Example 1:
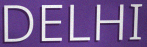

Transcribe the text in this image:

DELHI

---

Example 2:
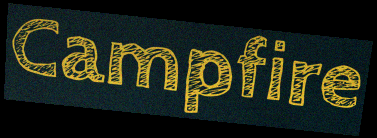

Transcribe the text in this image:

Campfire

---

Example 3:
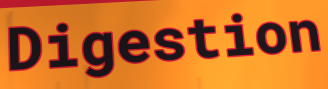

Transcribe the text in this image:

Digestion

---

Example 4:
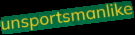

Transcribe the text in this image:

unsportsmanlike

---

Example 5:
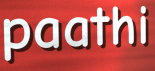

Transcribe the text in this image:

paathi